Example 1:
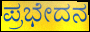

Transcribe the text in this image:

ಪ್ರಭೇದನ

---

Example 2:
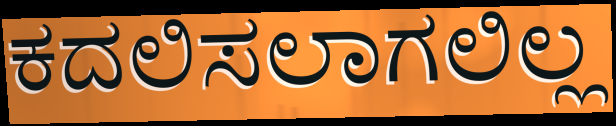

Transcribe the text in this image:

ಕದಲಿಸಲಾಗಲಿಲ್ಲ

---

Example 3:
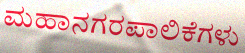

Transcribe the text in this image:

ಮಹಾನಗರಪಾಲಿಕೆಗಳು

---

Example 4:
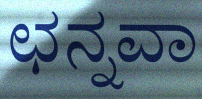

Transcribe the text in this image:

ಛನ್ನವಾ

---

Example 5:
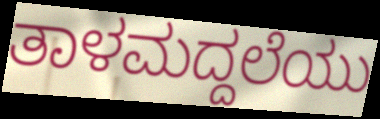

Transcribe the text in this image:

ತಾಳಮದ್ದಲೆಯು